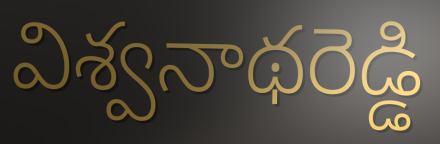
విశ్వనాథరెడ్డి